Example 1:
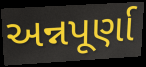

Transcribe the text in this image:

અન્નપૂર્ણા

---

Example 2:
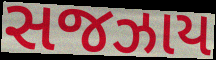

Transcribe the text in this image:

સજઝાય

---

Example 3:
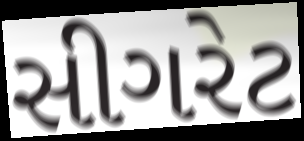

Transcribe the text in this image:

સીગરેટ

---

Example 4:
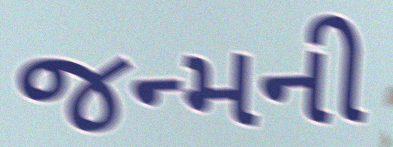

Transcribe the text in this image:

જન્મની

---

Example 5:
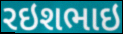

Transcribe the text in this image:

રઇશભાઇ